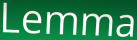
Lemma